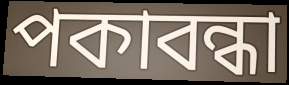
পকাবন্ধা